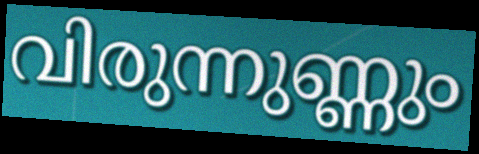
വിരുന്നുണ്ണും